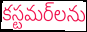
కస్టమర్‌లను